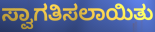
ಸ್ವಾಗತಿಸಲಾಯಿತು